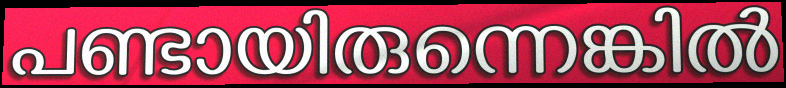
പണ്ടായിരുന്നെങ്കിൽ